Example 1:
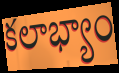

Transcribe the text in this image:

కలాభ్యాం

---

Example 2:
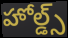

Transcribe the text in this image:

హోల్డ్స్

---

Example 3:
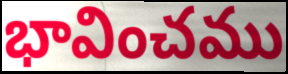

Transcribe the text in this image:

భావించము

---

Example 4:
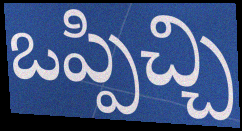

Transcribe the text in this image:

ఒప్పిచ్చి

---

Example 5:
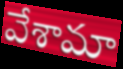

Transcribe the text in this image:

వేశామా